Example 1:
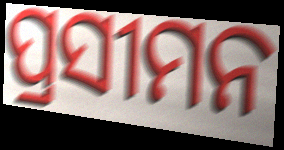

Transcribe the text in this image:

ପ୍ରସୀମନ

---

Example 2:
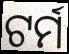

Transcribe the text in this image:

ଟର୍ମ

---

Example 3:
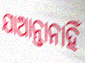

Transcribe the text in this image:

ଯାଆନ୍ତାନାହିଁ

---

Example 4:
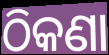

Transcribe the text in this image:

ଠିକଣା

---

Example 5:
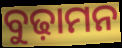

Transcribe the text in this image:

ବୁଢ଼ାମନ